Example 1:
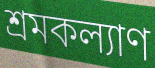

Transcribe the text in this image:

শ্রমকল্যাণ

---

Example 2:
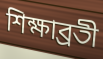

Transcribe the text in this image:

শিক্ষাব্রতী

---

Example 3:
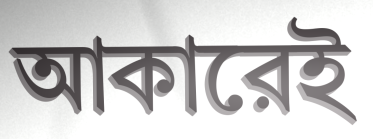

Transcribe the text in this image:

আকারেই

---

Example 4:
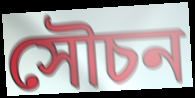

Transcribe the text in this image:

সৌচন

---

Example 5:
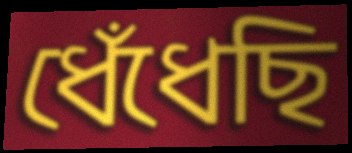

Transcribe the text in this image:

ধেঁধেছি